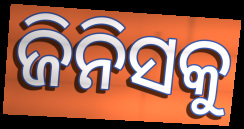
ଜିନିସକୁ